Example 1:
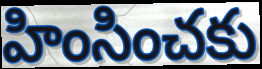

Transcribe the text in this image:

హింసించకు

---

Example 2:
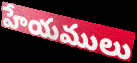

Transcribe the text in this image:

హేయములు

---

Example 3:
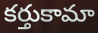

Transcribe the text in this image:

కర్తుకామా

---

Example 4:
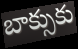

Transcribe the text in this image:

బాక్సుకు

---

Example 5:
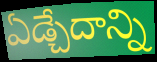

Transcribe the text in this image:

ఏడ్చేదాన్ని